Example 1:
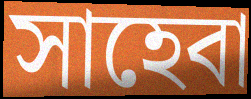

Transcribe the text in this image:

সাহেবা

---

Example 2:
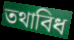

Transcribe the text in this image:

তথাবিধ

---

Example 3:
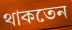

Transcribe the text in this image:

থাকতেন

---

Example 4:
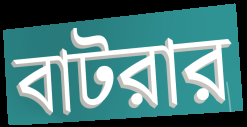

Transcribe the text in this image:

বাটরার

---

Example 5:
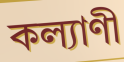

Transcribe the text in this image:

কল্যাণী